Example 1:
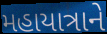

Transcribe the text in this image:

મહાયાત્રાને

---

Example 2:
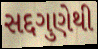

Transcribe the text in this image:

સદ્દગુણેથી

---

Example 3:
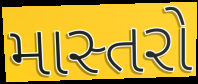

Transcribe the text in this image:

માસ્તરો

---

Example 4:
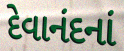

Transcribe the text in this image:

દેવાનંદનાં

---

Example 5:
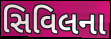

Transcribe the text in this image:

સિવિલના